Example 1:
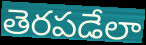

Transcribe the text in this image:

తెరపడేలా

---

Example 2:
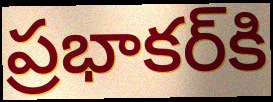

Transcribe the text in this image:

ప్రభాకర్‌కి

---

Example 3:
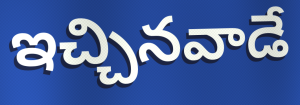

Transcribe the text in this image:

ఇచ్చినవాడే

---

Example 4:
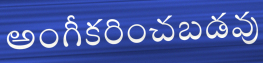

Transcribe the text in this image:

అంగీకరించబడవు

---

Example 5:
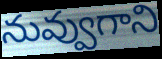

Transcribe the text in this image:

నువ్వుగాని